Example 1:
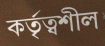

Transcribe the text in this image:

কৰ্তৃত্বশীল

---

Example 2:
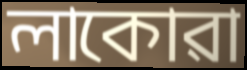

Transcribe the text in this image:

লাকোৱা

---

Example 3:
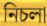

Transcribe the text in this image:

নিচলা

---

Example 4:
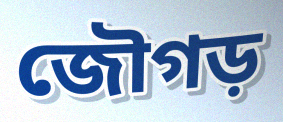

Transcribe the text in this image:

জৌগড়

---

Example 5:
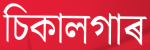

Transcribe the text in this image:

চিকালগাৰ